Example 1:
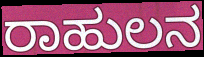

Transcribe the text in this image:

ರಾಹುಲನ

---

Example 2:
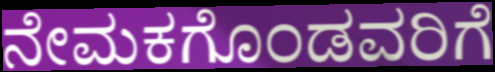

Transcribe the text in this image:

ನೇಮಕಗೊಂಡವರಿಗೆ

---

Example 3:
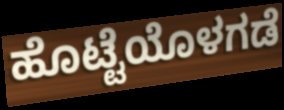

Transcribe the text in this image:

ಹೊಟ್ಟೆಯೊಳಗಡೆ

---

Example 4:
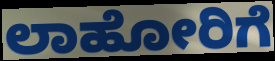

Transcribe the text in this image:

ಲಾಹೋರಿಗೆ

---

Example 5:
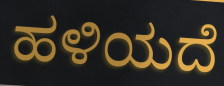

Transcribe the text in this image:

ಹಳಿಯದೆ